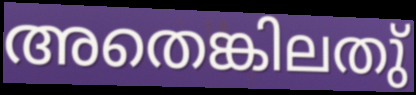
അതെങ്കിലതു്